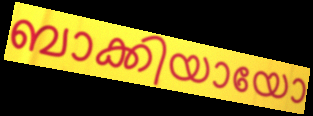
ബാക്കിയായോ